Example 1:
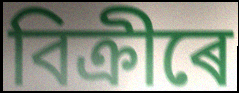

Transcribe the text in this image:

বিক্ৰীৰে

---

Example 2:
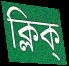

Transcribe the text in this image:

ক্লিক্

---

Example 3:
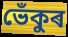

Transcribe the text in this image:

ভেঁকুৰ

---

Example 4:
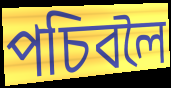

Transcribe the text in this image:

পচিবলৈ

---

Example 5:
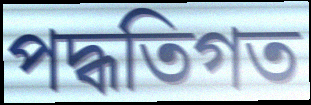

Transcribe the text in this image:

পদ্ধতিগত